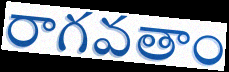
రాగవతాం